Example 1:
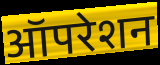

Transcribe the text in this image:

ऑपरेशन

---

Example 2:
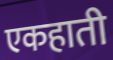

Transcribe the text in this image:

एकहाती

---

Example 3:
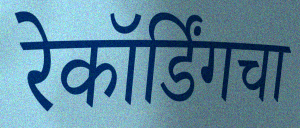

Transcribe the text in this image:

रेकॉर्डिंगचा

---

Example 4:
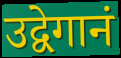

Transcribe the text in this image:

उद्वेगानं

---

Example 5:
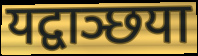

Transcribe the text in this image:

यद्वाञ्छया